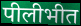
पीलीभीत